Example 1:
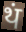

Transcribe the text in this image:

थं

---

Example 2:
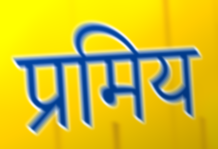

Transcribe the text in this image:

प्रमिय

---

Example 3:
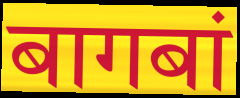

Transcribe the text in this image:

बागबां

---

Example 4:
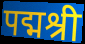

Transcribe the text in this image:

पद्मश्री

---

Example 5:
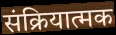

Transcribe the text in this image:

संक्रियात्मक